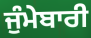
ਜੁੰਮੇਬਾਰੀ